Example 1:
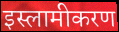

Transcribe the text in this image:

इस्लामीकरण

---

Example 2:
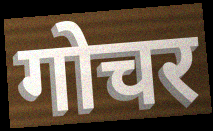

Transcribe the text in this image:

गोचर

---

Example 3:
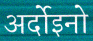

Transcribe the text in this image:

अर्दोइनो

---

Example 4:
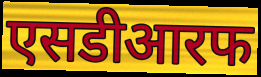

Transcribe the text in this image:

एसडीआरफ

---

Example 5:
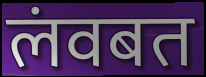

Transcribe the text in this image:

लंवबत